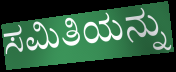
ಸಮಿತಿಯನ್ನು